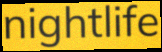
nightlife